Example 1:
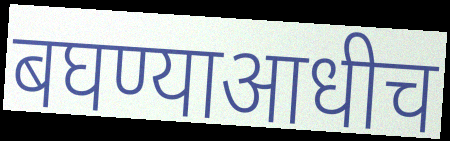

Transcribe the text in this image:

बघण्याआधीच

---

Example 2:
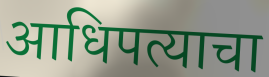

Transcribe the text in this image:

आधिपत्याचा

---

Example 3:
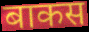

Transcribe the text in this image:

बाकस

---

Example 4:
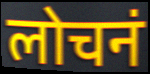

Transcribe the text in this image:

लोचनं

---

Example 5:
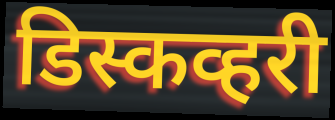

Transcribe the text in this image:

डिस्कव्हरी